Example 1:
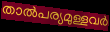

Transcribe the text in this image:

താൽപര്യമുള്ളവർ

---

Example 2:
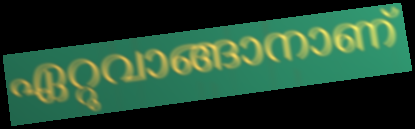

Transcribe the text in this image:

ഏറ്റുവാങ്ങാനാണ്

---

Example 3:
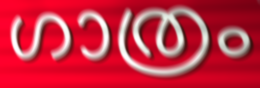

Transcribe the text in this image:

ഗാത്രം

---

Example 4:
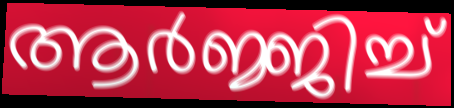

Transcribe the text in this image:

ആർജ്ജിച്ച്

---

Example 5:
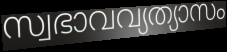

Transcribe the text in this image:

സ്വഭാവവ്യത്യാസം